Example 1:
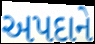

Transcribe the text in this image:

અપદાને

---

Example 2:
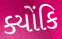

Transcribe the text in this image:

ક્યોંકિ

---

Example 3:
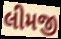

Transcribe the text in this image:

લીમજી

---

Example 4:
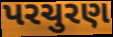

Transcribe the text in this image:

પરચુરણ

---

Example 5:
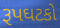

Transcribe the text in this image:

રૂપઘટકો